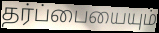
தர்ப்பையையும்